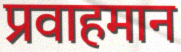
प्रवाहमान